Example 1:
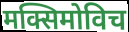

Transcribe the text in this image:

मक्सिमोविच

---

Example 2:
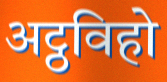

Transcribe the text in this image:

अट्ठविहो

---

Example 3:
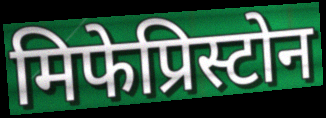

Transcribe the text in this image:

मिफेप्रिस्टोन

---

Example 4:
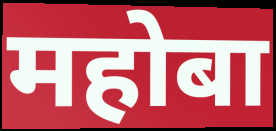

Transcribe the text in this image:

महोबा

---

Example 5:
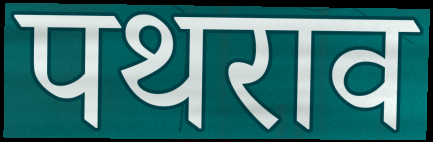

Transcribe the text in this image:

पथराव